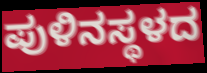
ಪುಳಿನಸ್ಥಳದ